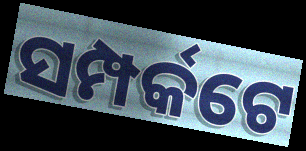
ସମ୍ପର୍କଟେ